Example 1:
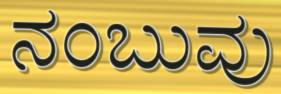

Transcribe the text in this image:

ನಂಬುವು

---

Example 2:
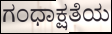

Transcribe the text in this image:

ಗಂಧಾಕ್ಷತೆಯ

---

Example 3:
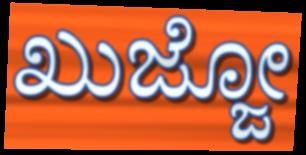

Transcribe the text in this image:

ಖುಜ್ಜೋ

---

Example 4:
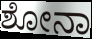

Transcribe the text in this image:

ಶೋನಾ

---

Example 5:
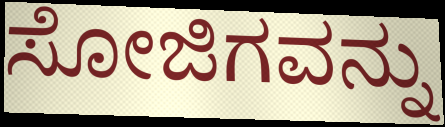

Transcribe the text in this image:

ಸೋಜಿಗವನ್ನು